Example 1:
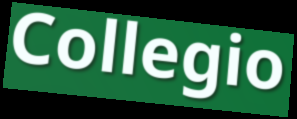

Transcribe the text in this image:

Collegio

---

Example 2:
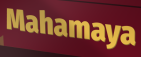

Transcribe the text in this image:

Mahamaya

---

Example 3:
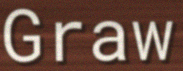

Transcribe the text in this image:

Graw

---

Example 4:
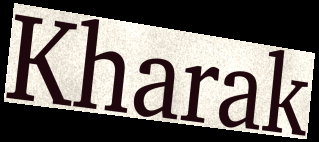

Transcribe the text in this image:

Kharak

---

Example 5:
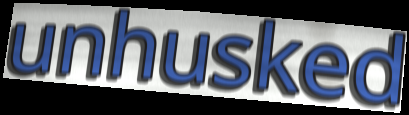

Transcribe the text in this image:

unhusked